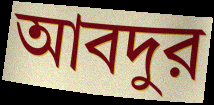
আবদুর